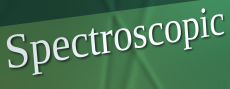
Spectroscopic